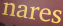
nares